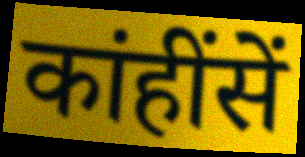
कांहींसें